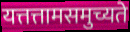
यत्तत्तामसमुच्यते